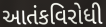
આતંકવિરોધી